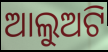
ଆଲୁଅଟି